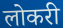
लोकरी